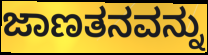
ಜಾಣತನವನ್ನು